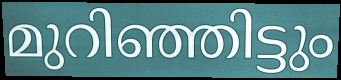
മുറിഞ്ഞിട്ടും